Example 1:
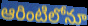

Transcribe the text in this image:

ఆరింటిలోనూ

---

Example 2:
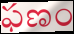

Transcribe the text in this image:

ఫణం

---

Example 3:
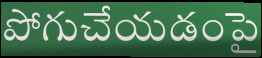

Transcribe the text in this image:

పోగుచేయడంపై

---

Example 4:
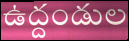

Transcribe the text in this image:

ఉద్దండుల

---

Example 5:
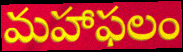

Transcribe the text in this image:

మహాఫలం